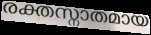
രക്തസ്നാതമായ